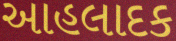
આહલાદક